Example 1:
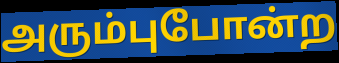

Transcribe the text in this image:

அரும்புபோன்ற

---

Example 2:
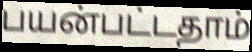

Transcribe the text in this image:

பயன்பட்டதாம்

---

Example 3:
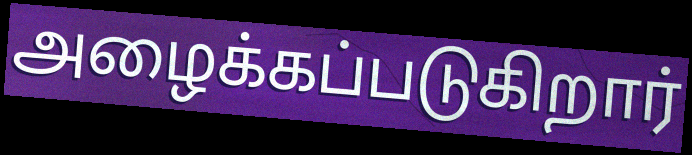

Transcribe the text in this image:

அழைக்கப்படுகிறார்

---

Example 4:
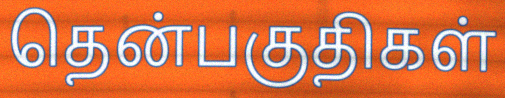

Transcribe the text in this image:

தென்பகுதிகள்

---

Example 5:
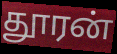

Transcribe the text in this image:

தூரன்